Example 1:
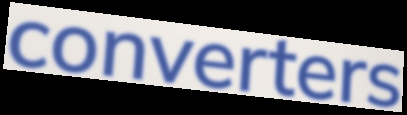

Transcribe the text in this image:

converters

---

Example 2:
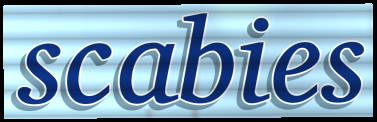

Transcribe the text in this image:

scabies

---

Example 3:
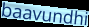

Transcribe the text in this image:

baavundhi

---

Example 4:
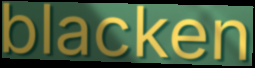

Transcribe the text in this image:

blacken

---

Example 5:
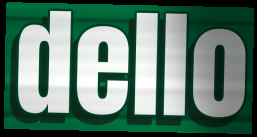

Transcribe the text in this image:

dello